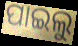
ପାଇଲୁ